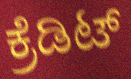
ಕ್ರೆಡಿಟ್